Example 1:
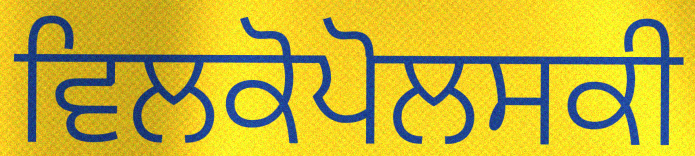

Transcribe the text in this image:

ਵਿਲਕੋਪੋਲਸਕੀ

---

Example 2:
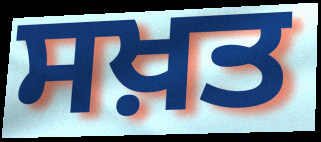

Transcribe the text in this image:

ਸਖ਼ਤ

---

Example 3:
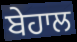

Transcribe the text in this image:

ਬੇਹਾਲ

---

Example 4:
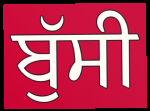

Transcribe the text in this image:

ਬੁੱਸੀ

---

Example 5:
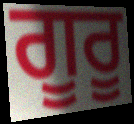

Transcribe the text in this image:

ਗੂਰੂ